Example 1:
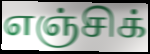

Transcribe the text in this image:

எஞ்சிக்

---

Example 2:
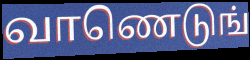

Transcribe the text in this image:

வாணெடுங்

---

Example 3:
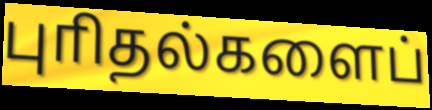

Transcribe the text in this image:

புரிதல்களைப்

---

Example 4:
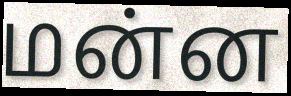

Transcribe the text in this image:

மன்ன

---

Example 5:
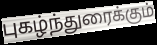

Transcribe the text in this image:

புகழ்ந்துரைக்கும்